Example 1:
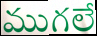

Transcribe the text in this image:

ముగలే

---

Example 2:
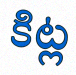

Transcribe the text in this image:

కిట్ల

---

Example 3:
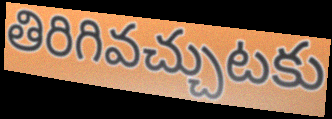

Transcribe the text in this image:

తిరిగివచ్చుటకు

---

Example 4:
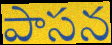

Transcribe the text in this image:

పాసన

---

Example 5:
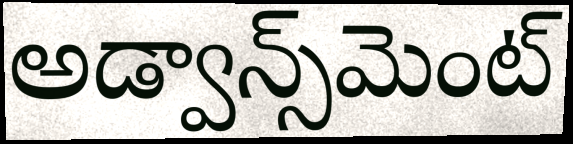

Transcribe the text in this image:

అడ్వాన్స్‌మెంట్